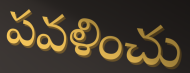
పవళించు